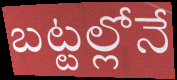
బట్టల్లోనే